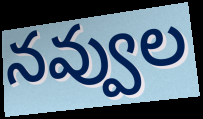
నవ్వుల